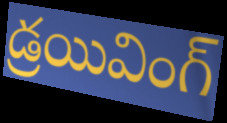
డ్రయివింగ్